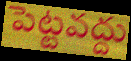
పెట్టవద్దు